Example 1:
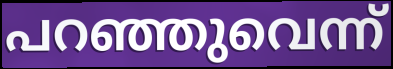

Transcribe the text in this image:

പറഞ്ഞുവെന്ന്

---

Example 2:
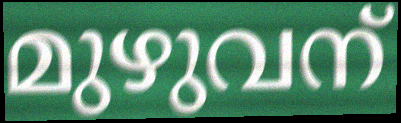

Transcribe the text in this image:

മുഴുവന്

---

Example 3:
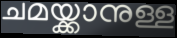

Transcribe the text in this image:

ചമയ്ക്കാനുള്ള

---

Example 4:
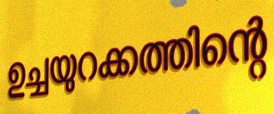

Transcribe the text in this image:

ഉച്ചയുറക്കത്തിന്റെ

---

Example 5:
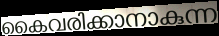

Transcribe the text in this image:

കൈവരിക്കാനാകുന്ന